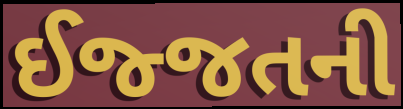
ઈજ્જતની